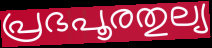
പ്രഭപൂരതുല്യ